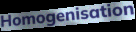
Homogenisation